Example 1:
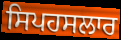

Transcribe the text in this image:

ਸਿਪਹਸਲਾਰ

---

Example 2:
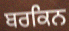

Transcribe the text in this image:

ਬਰਕਿਨ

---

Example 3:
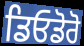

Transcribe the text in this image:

ਡਿਓਡੋਰੋ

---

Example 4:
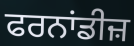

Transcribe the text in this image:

ਫਰਨਾਂਡੀਜ਼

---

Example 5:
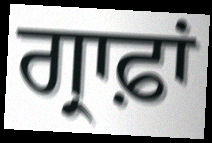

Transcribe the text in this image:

ਗ੍ਰਾਫ਼ਾਂ